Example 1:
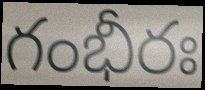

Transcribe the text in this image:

గంభీరః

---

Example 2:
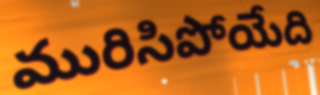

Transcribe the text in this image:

మురిసిపోయేది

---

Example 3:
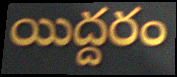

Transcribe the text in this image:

యిద్దరం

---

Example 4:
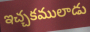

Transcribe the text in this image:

ఇచ్చకములాడు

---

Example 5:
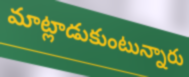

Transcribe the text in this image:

మాట్లాడుకుంటున్నారు